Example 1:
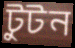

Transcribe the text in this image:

টুটন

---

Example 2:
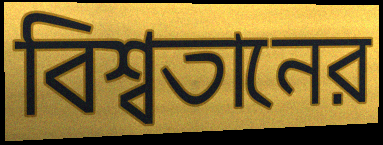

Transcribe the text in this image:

বিশ্বতানের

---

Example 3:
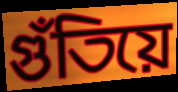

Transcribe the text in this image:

গুঁতিয়ে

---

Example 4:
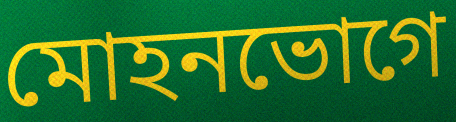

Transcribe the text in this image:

মোহনভোগে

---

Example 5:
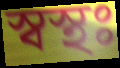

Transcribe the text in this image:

স্বস্থঃ